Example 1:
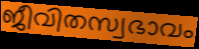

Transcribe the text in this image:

ജീവിതസ്വഭാവം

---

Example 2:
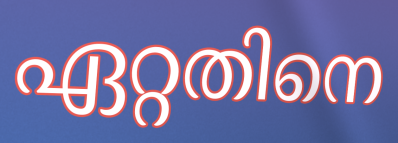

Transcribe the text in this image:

ഏറ്റതിനെ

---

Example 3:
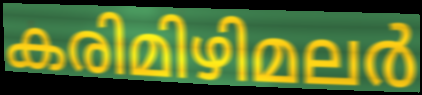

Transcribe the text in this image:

കരിമിഴിമലർ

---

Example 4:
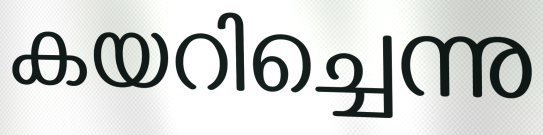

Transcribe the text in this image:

കയറിച്ചെന്നു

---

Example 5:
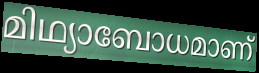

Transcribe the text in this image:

മിഥ്യാബോധമാണ്